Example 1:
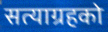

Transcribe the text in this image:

सत्याग्रहको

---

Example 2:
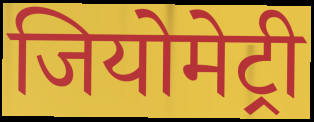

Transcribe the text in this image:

जियोमेट्री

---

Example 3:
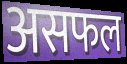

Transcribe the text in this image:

असफल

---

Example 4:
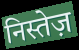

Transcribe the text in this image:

निस्तेज़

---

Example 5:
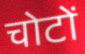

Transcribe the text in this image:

चोटों